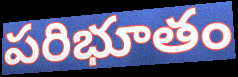
పరిభూతం